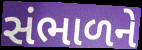
સંભાળને